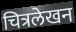
चित्रलेखन